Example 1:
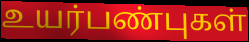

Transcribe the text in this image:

உயர்பண்புகள்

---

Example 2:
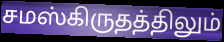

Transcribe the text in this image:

சமஸ்கிருதத்திலும்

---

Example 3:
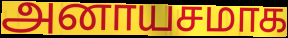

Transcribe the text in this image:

அனாயசமாக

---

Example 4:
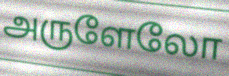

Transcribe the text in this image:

அருளேலோ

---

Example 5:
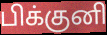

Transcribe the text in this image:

பிக்குனி